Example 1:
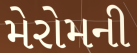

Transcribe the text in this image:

મેરોમની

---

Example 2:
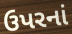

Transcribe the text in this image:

ઉપરનાં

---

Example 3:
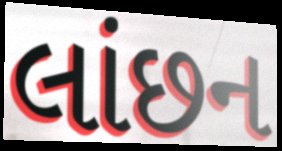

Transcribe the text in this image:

લાંછન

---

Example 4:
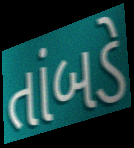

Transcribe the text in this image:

તાંબડે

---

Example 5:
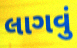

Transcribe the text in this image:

લાગવું